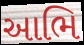
આભિ